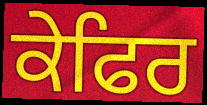
ਕੇਫਿਰ